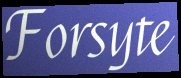
Forsyte